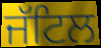
ਜੱਟਿਲ